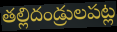
తల్లిదండ్రులపట్ల